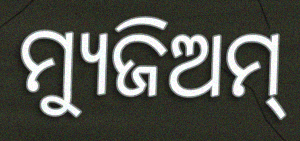
ମ୍ୟୁଜିଅମ୍